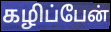
கழிப்பேன்